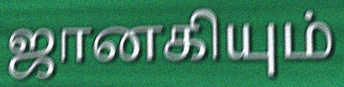
ஜானகியும்